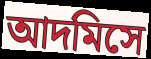
আদমিসে